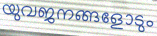
യുവജനങ്ങളോടും